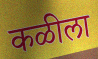
कळीला